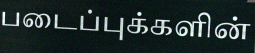
படைப்புக்களின்